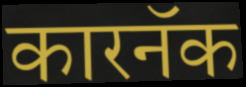
कारनॅक